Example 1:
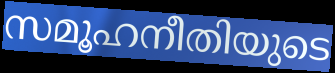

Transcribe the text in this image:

സമൂഹനീതിയുടെ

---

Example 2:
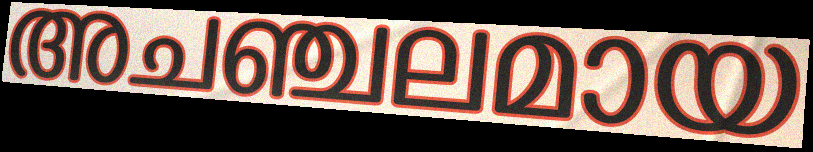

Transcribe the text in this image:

അചഞ്ചലമായ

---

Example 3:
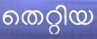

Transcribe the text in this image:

തെറ്റിയ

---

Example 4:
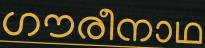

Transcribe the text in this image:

ഗൗരീനാഥ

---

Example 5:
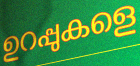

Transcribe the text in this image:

ഉറപ്പുകളെ